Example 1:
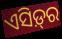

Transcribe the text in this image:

ଏସିଡ଼୍‌ର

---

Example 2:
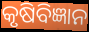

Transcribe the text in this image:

କୃଷିବିଜ୍ଞାନ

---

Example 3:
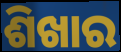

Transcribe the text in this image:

ଶିଖାର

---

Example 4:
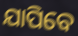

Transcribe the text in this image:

ଯାପିବେ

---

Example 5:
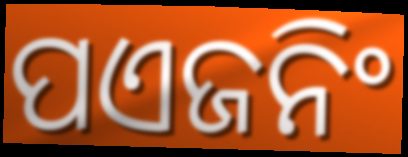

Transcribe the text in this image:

ପଏଜନିଂ